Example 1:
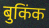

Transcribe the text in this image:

बुकिंक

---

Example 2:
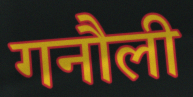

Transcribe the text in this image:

गनौली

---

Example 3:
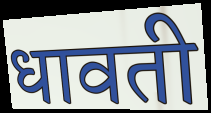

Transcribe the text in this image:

धावती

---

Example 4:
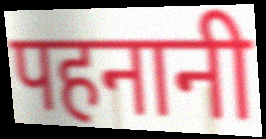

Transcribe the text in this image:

पहनानी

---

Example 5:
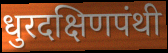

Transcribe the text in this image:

धुरदक्षिणपंथी